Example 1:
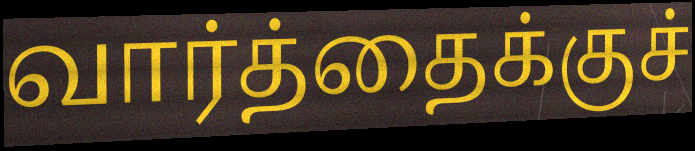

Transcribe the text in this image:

வார்த்தைக்குச்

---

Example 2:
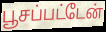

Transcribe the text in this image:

பூசப்பட்டேன்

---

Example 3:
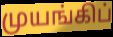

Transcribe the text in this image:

முயங்கிப்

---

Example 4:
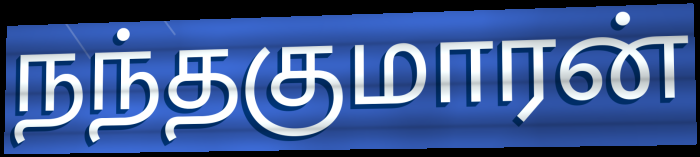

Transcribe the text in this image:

நந்தகுமாரன்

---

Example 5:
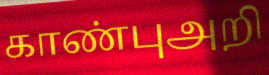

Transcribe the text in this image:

காண்புஅறி